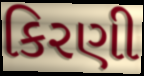
કિરણી